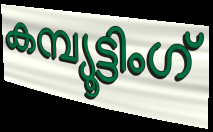
കമ്പ്യൂട്ടിംഗ്